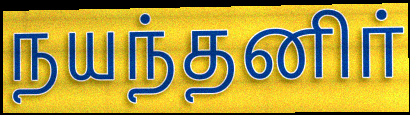
நயந்தனிர்